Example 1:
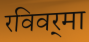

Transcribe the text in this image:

रविवर्मा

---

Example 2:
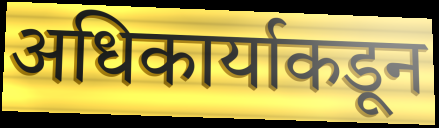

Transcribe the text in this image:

अधिकार्याकडून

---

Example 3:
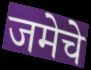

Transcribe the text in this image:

जमेचे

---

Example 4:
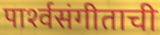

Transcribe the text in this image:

पार्श्वसंगीताची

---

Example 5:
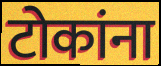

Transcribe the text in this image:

टोकांना